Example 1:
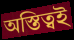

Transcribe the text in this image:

অস্তিত্বই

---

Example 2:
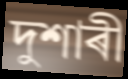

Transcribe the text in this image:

দুশাৰী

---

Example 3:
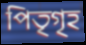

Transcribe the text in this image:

পিতৃগৃহ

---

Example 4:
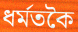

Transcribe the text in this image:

ধৰ্মতকৈ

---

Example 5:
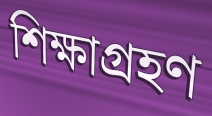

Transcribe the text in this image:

শিক্ষাগ্ৰহণ